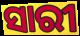
ସାରୀ